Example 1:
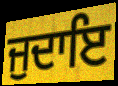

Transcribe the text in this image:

ਜੁਦਾਇ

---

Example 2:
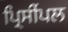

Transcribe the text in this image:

ਪ੍ਰਿਸੀਂਪਲ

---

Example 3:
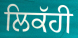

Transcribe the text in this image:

ਲਿਕੱਹੀ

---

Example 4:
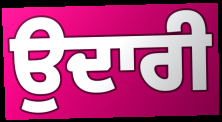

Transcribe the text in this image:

ਉਦਾਰੀ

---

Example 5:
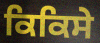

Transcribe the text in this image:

ਕਿਕਿਸੇ